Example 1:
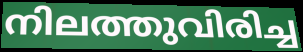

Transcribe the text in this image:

നിലത്തുവിരിച്ച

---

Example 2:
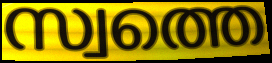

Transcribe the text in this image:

സ്വത്തെ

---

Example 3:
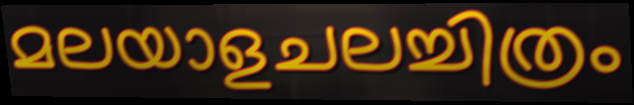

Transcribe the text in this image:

മലയാളചലച്ചിത്രം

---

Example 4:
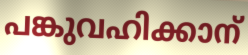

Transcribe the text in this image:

പങ്കുവഹിക്കാന്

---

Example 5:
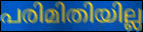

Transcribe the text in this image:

പരിമിതിയില്ല